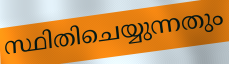
സ്ഥിതിചെയ്യുന്നതും